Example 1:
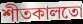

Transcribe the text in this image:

শীতকালতো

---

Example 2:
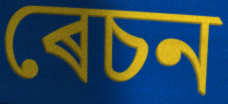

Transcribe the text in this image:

ৰেচন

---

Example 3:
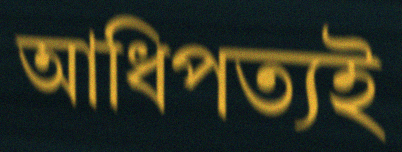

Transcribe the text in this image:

আধিপত্যই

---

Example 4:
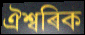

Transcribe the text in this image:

ঐশ্বৰিক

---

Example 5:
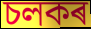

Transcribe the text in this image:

চলকৰ